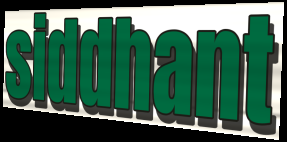
siddhant